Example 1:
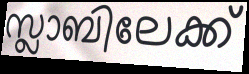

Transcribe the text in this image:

സ്ലാബിലേക്ക്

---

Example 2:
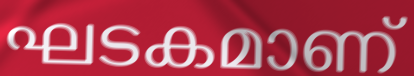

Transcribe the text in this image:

ഘടകമാണ്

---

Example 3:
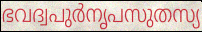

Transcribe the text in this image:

ഭവദ്വപുർനൃപസുതസ്യ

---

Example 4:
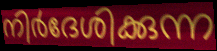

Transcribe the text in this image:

നിർദേശിക്കുന്ന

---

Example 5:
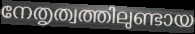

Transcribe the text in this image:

നേതൃത്വത്തിലുണ്ടായ